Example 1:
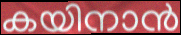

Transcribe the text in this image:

കയിനാൻ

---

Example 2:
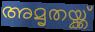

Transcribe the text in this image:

അമൃതയ്ക്ക്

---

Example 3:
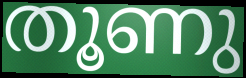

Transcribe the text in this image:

തൂണു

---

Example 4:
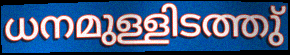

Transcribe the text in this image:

ധനമുള്ളിടത്തു്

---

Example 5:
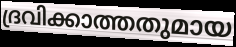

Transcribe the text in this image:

ദ്രവിക്കാത്തതുമായ